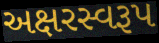
અક્ષરસ્વરૂપ